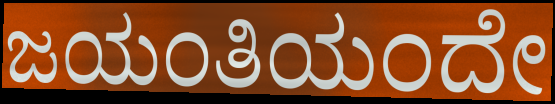
ಜಯಂತಿಯಂದೇ